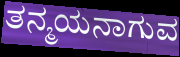
ತನ್ಮಯನಾಗುವ